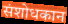
संशोधकान